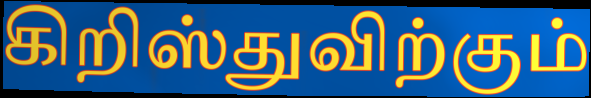
கிறிஸ்துவிற்கும்